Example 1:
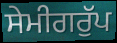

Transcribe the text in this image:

ਸੇਮੀਗਰੁੱਪ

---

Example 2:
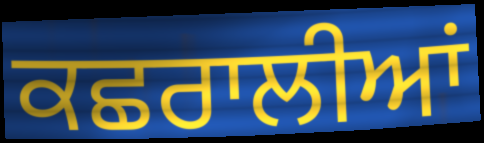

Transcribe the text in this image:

ਕਛਰਾਲੀਆਂ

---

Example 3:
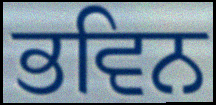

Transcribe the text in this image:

ਭਵਿਨ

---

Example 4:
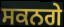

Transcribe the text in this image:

ਸਕਨਗੇ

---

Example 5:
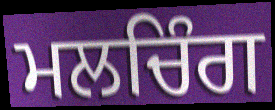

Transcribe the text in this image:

ਮਲਚਿੰਗ